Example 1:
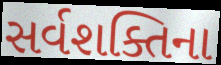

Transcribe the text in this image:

સર્વશક્તિના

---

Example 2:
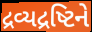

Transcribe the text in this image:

દ્રવ્યદ્રષ્ટિને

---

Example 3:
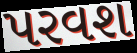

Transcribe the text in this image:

પરવશ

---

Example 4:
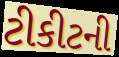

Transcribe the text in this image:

ટીકીટની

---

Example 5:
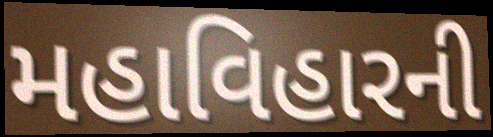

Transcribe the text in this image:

મહાવિહારની